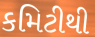
કમિટીથી